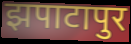
झपाटापुर